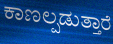
ಕಾಣಲ್ಪಡುತ್ತಾರೆ